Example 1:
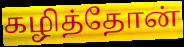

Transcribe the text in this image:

கழித்தோன்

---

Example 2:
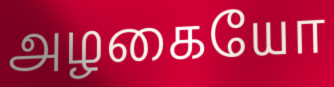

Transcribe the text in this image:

அழகையோ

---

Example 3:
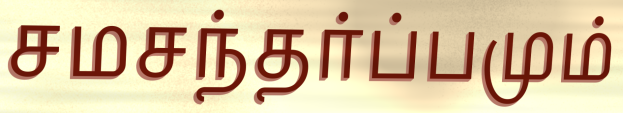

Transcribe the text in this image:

சமசந்தர்ப்பமும்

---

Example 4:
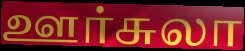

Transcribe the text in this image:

ஊர்சுலா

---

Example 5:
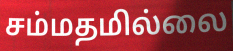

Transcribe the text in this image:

சம்மதமில்லை